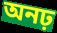
অনঢ়